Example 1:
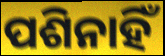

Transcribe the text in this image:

ପଶିନାହିଁ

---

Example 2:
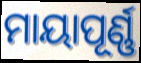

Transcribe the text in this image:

ମାୟାପୂର୍ଣ୍ଣ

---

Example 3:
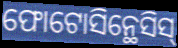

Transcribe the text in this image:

ଫୋଟୋସିନ୍ଥେସିସ୍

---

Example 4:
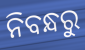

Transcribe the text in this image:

ନିବନ୍ଧରୁ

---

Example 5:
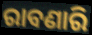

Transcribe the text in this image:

ରାବଣାରି